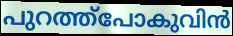
പുറത്ത്പോകുവിൻ